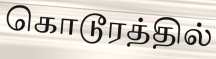
கொடூரத்தில்